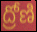
ద్రోణి